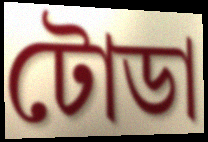
টোডা